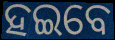
ହଇବେ